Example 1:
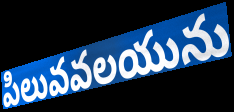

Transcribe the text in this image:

పిలువవలయును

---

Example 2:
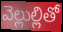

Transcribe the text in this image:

వెల్లుల్లితో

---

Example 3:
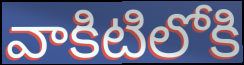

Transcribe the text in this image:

వాకిటిలోకి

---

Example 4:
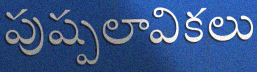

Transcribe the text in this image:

పుష్పలావికలు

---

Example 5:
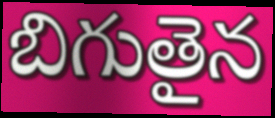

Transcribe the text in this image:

బిగుతైన